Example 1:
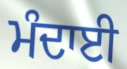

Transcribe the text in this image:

ਮੰਦਾਈ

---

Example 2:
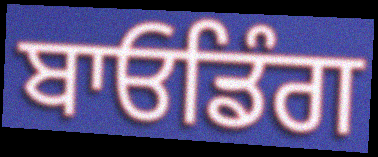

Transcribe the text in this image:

ਬਾਓਡਿੰਗ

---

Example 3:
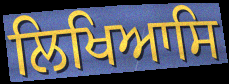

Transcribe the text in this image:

ਲਿਖਿਆਸਿ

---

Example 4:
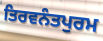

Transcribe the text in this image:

ਤਿਰਵਨੰਤਪੁਰਮ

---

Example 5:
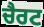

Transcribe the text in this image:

ਚੈਰਟ